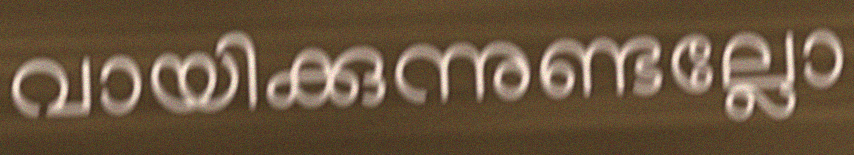
വായിക്കുന്നുണ്ടല്ലോ